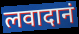
लवादानं